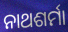
ନାଥଶର୍ମା